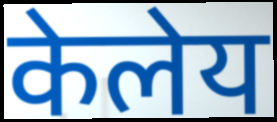
केलेय